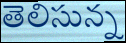
తెలిసున్న